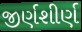
જીર્ણશીર્ણ